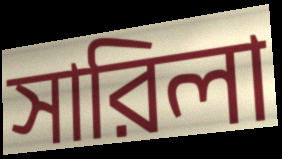
সারিলা